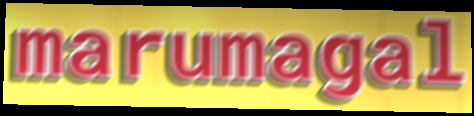
marumagal